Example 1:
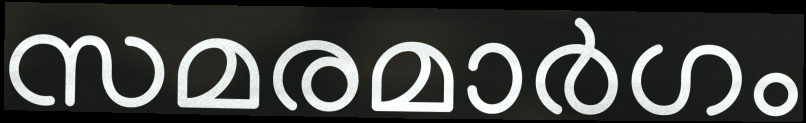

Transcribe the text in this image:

സമരമാർഗം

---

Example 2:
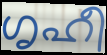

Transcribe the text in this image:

ഗൃഹീ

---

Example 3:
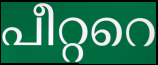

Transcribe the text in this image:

പീറ്ററെ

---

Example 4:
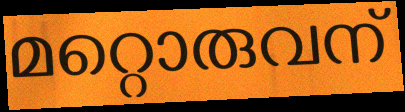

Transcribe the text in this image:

മറ്റൊരുവന്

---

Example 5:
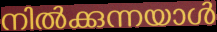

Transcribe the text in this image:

നിൽക്കുന്നയാൾ